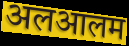
अलआलम